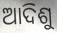
ଆଦିଶୁ